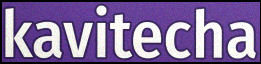
kavitecha